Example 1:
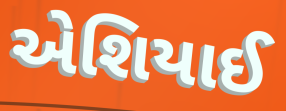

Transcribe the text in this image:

એશિયાઈ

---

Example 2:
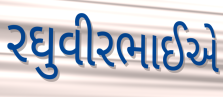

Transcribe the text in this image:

રઘુવીરભાઈએ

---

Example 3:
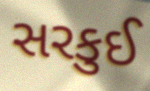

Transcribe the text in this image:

સરકુઈ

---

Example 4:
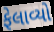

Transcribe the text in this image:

ફેલાવ્યો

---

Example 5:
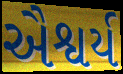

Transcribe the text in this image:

ઐશ્વર્ય